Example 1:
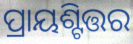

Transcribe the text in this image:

ପ୍ରାୟଶ୍ଟିତ୍ତର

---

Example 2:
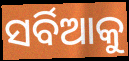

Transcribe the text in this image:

ସର୍ବିଆକୁ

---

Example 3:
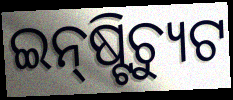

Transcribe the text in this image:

ଇନ୍‌ଷ୍ଟିଚ୍ୟୁଟ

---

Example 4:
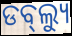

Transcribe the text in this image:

ଡବ୍‌ଲ୍ୟୁ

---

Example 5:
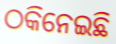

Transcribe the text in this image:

ଠକିନେଇଛି